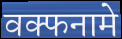
वक्फनामे